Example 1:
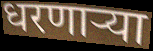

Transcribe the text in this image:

धरणाऱ्या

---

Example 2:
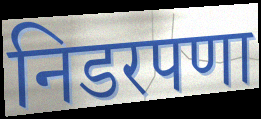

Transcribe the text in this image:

निडरपणा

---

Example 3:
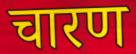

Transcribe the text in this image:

चारण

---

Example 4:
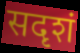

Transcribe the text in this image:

सदृशं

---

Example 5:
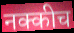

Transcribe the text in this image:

नक्‍कीच